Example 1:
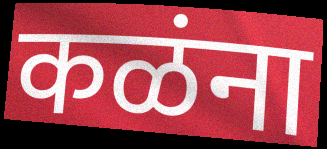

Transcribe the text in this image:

कळंना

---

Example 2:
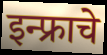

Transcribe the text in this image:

इन्फ्राचे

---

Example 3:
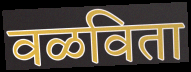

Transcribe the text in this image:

वळविता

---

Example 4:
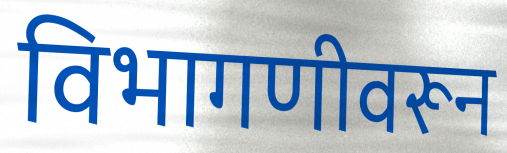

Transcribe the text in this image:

विभागणीवरून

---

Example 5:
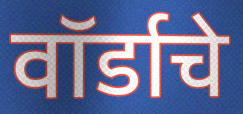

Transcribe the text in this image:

वॉर्डाचे